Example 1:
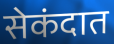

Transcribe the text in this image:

सेकंदात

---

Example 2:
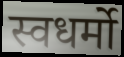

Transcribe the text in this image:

स्वधर्मो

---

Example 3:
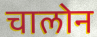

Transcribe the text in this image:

चालोन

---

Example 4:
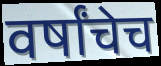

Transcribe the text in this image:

वर्षांचेच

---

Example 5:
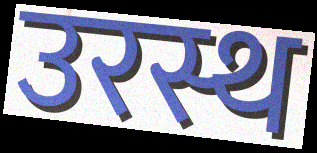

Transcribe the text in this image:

उरस्थ